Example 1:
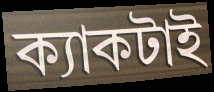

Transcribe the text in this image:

ক্যাকটাই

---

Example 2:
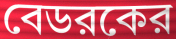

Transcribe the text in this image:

বেডরকের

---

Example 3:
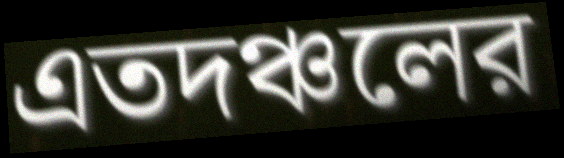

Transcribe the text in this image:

এতদঞ্চলের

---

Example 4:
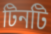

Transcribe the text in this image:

টিনটি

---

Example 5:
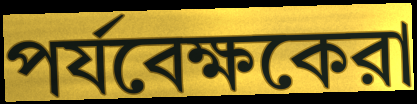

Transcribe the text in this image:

পর্যবেক্ষকেরা